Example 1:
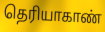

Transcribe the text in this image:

தெரியாகாண்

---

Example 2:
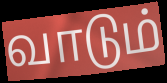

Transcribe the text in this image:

வாடும்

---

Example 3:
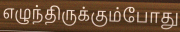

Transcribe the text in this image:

எழுந்திருக்கும்போது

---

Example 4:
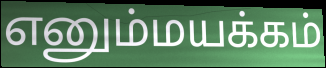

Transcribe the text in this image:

எனும்மயக்கம்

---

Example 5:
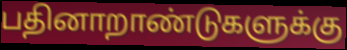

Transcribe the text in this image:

பதினாறாண்டுகளுக்கு